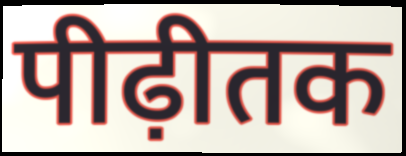
पीढ़ीतक